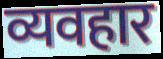
व्यवहार